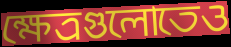
ক্ষেত্রগুলোতেও